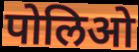
पोलिओ